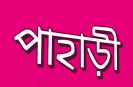
পাহাড়ী